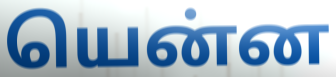
யென்ன